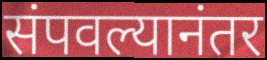
संपवल्यानंतर